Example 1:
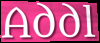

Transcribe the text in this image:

Addl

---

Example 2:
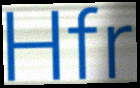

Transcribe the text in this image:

Hfr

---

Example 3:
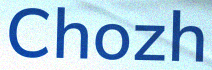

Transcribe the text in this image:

Chozh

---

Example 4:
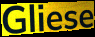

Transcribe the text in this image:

Gliese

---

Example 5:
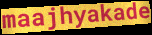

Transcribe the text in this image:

maajhyakade